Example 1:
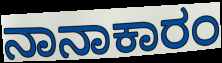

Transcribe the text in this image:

ನಾನಾಕಾರಂ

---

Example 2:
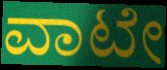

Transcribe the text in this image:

ವಾಟೇ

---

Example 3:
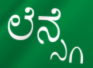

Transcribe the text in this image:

ಲೆನ್ಸ್ಗೆ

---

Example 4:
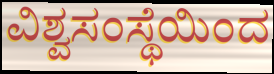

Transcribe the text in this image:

ವಿಶ್ವಸಂಸ್ಥೆಯಿಂದ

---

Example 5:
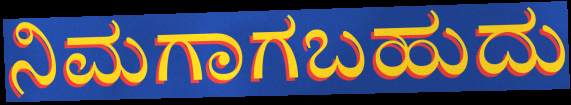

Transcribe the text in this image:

ನಿಮಗಾಗಬಹುದು